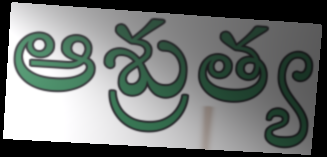
ఆశ్రుత్య